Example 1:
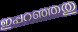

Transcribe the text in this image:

ഇപ്പറഞ്ഞതു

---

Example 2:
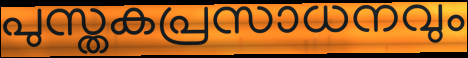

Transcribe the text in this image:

പുസ്തകപ്രസാധനവും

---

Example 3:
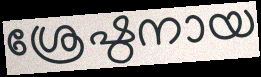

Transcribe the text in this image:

ശ്രേഷ്ഠനായ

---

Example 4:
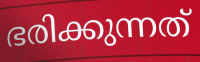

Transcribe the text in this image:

ഭരിക്കുന്നത്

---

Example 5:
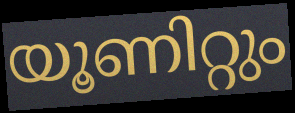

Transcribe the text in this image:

യൂണിറ്റും